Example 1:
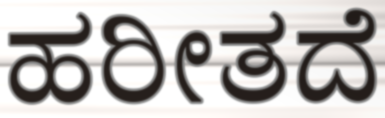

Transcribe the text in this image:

ಹರೀತದೆ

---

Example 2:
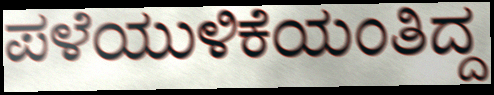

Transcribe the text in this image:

ಪಳೆಯುಳಿಕೆಯಂತಿದ್ದ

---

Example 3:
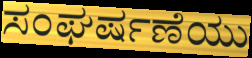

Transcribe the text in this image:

ಸಂಘರ್ಷಣೆಯು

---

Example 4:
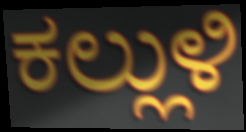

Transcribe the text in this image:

ಕಲ್ಲುಳಿ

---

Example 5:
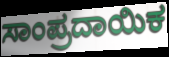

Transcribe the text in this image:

ಸಾಂಪ್ರದಾಯಿಕ